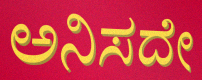
ಅನಿಸದೇ